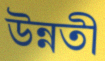
উন্নতী